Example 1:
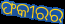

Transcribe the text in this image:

ଫକୀରର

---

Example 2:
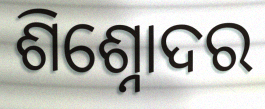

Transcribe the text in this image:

ଶିଶ୍ନୋଦର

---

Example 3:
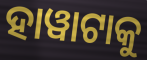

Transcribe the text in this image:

ହାୱାଟାକୁ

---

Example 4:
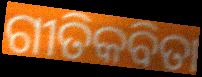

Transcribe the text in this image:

ଗୀତିକବିତା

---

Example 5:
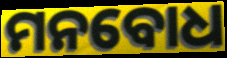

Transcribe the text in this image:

ମନବୋଧ